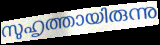
സുഹൃത്തായിരുന്നു